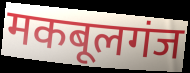
मकबूलगंज